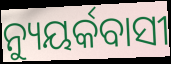
ନ୍ୟୁୟର୍କବାସୀ